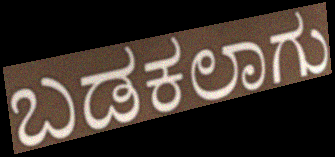
ಬಡಕಲಾಗು